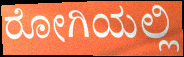
ರೋಗಿಯಲ್ಲಿ